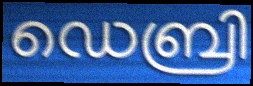
ഡെബ്രി